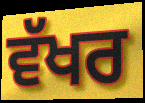
ਵੱਖਰ